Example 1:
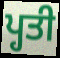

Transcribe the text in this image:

ਪ੍ਹਤੀ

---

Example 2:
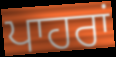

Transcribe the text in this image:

ਪਾਹਰਾਂ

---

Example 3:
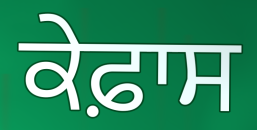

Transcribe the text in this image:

ਕੇਫ਼ਾਸ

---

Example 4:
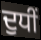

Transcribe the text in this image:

ਦੁਧੀਂ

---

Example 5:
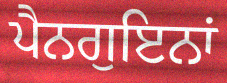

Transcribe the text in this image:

ਪੈਨਗੁਇਨਾਂ